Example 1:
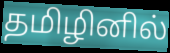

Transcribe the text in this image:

தமிழினில்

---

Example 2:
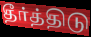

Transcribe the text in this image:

தீர்த்திடு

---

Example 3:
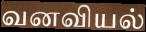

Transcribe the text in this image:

வனவியல்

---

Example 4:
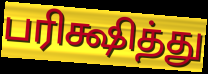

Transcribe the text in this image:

பரிக்ஷித்து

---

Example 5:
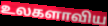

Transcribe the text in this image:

உலகளாவிய